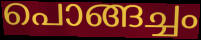
പൊങ്ങച്ചം